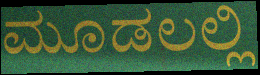
ಮೂಡಲಲ್ಲಿ